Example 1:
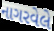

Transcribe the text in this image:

નાગરવેલે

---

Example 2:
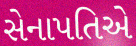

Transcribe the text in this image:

સેનાપતિએ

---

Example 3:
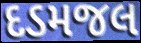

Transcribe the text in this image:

દડમજલ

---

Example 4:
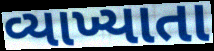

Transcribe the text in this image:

વ્યાખ્યાતા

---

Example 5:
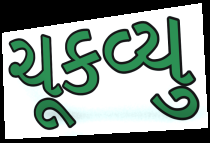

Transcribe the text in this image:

ચૂકવ્યુ